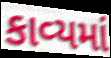
કાવ્‍યમાં